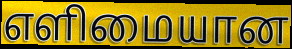
எளிமையான